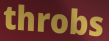
throbs